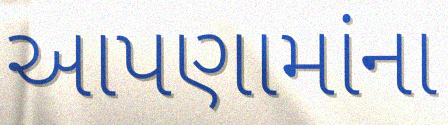
આપણામાંના